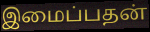
இமைப்பதன்